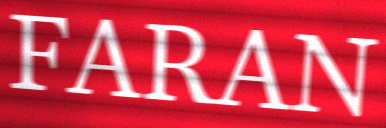
FARAN